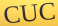
CUC